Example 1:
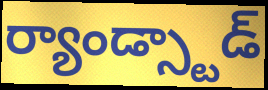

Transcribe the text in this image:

ర్యాండ్స్టాడ్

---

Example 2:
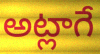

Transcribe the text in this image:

అట్లాగే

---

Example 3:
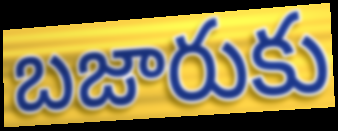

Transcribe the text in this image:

బజారుకు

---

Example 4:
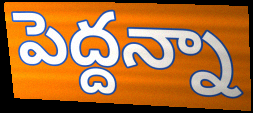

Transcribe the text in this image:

పెద్దన్నా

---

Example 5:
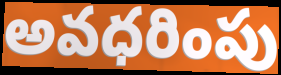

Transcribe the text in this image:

అవధరింపు